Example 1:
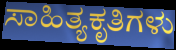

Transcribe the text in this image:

ಸಾಹಿತ್ಯಕೃತಿಗಳು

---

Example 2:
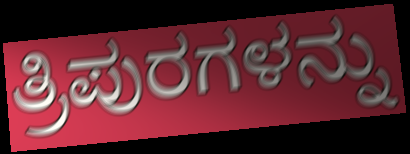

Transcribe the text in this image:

ತ್ರಿಪುರಗಳನ್ನು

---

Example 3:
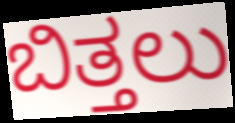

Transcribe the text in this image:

ಬಿತ್ತಲು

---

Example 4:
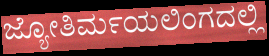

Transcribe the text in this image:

ಜ್ಯೋತಿರ್ಮಯಲಿಂಗದಲ್ಲಿ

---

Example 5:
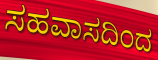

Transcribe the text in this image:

ಸಹವಾಸದಿಂದ